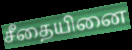
சீதையினை